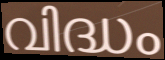
വിദ്ധം